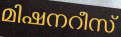
മിഷനറീസ്